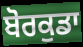
ਬੋਰਕੁਡਾ